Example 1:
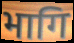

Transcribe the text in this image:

भागि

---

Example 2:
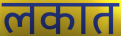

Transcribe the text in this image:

लकात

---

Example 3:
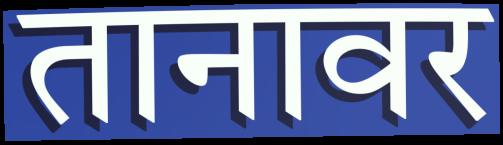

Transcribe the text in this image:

तानावर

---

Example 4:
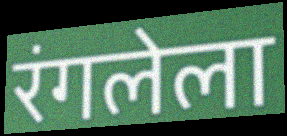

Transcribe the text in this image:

रंगलेला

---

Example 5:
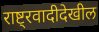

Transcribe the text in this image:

राष्ट्रवादीदेखील